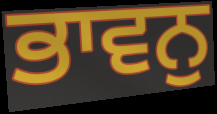
ਭਾਵਨੁ